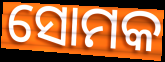
ସୋମକ